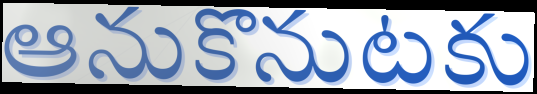
ఆనుకొనుటకు